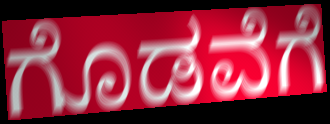
ಗೊಡವೆಗೆ